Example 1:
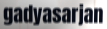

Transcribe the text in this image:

gadyasarjan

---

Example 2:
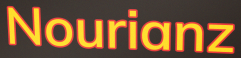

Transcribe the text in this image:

Nourianz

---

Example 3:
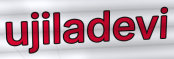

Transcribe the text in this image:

ujiladevi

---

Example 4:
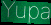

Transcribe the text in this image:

Yupa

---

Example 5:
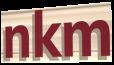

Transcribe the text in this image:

nkm